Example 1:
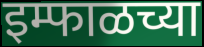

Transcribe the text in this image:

इम्फाळच्या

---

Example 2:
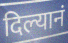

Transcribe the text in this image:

दिल्यानं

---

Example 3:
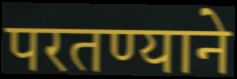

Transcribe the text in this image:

परतण्याने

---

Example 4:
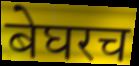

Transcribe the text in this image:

बेघरच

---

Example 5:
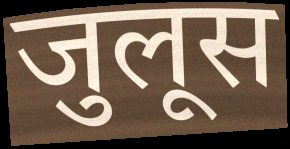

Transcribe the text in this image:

जुलूस